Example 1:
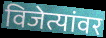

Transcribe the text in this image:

विजेत्यांवर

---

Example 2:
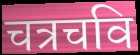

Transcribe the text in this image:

चत्रचवि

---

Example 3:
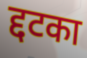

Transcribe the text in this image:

द्दटका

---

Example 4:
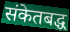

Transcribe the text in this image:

संकेतबद्ध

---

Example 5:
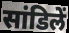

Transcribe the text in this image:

सांडिलें